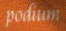
podium